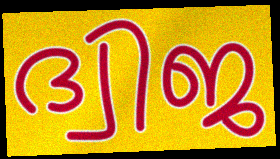
ദ്വിജ